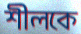
শীলকে